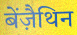
बेंज़ैथिन